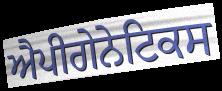
ਐਪੀਗੇਨੇਟਿਕਸ